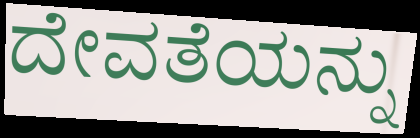
ದೇವತೆಯನ್ನು